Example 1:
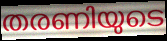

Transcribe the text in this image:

തരണിയുടെ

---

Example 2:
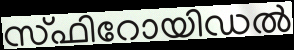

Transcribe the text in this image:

സ്ഫിറോയിഡൽ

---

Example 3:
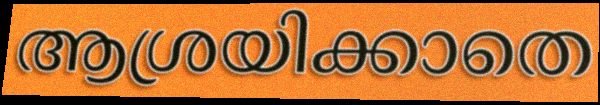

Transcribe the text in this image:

ആശ്രയിക്കാതെ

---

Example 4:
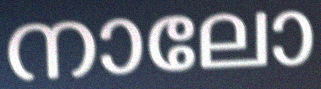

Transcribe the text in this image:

നാലോ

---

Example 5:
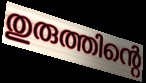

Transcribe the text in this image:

തുരുത്തിന്റെ